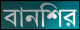
বানশির